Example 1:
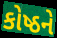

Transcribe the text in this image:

કોષ્ઠને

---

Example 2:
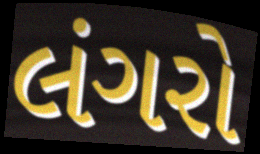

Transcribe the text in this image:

લંગરો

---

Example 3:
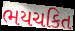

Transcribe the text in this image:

ભયચકિત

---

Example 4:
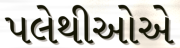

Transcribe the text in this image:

પલેથીઓએ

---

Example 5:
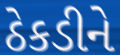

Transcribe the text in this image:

ઠેકડીને